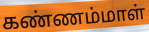
கண்ணம்மாள்